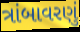
ત્રાંબાવરણું